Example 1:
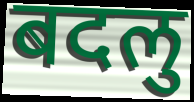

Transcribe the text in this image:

बदलु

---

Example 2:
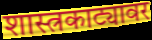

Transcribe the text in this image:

शास्त्रकाट्यावर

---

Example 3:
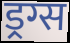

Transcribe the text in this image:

ड्रग्स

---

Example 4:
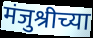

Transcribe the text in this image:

मंजुश्रीच्या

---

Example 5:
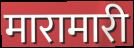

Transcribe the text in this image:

मारामारी